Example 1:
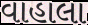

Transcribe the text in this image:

વાહાલા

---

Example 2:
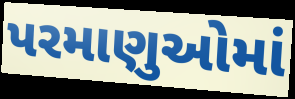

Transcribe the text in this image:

પરમાણુઓમાં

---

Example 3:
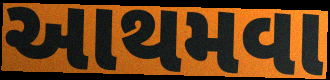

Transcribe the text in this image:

આથમવા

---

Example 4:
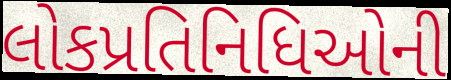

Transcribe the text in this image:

લોકપ્રતિનિધિઓની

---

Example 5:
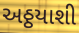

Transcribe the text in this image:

અઠ્ઠયાશી